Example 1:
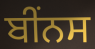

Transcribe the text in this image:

ਬੀਂਨਸ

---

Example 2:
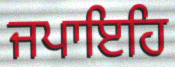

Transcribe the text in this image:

ਜਪਾਇਹਿ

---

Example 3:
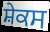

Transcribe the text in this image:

ਸ਼ੇਕਸ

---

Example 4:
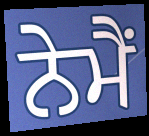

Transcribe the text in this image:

ਨੇਮੈਂ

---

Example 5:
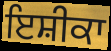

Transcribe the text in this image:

ਇਸ਼ੀਕਾ